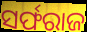
ସର୍ଫରାଜ